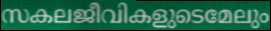
സകലജീവികളുടെമേലും